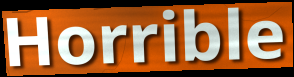
Horrible